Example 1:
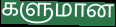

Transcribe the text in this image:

களுமான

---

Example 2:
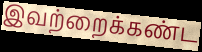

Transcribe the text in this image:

இவற்றைக்கண்ட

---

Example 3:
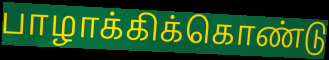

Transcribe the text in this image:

பாழாக்கிக்கொண்டு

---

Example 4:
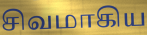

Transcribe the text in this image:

சிவமாகிய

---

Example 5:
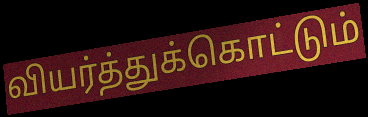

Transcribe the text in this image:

வியர்த்துக்கொட்டும்